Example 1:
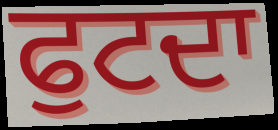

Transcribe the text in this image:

ਫੁਟਦਾ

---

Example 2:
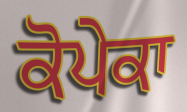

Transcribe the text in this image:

ਕੋਪੇਕਾ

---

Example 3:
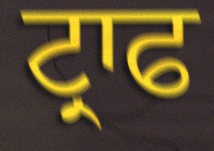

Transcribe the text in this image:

ਟ੍ਰਾਫ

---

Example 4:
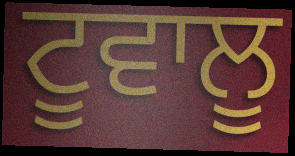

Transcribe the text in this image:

ਟੂਵਾਲੂ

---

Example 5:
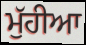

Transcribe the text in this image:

ਮੁੱਹੀਆ